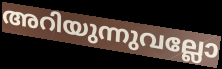
അറിയുന്നുവല്ലോ